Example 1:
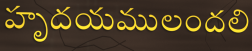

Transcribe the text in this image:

హృదయములందలి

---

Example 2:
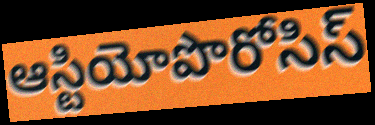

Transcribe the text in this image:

ఆస్టియోపొరోసిస్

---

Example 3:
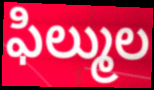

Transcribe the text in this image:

ఫిల్ముల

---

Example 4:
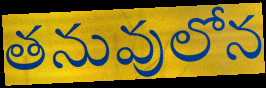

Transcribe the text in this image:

తనువులోన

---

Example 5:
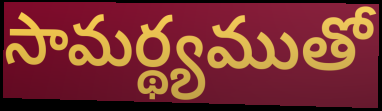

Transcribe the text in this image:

సామర్థ్యముతో